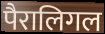
पैरालिगल